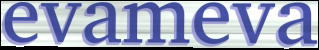
evameva